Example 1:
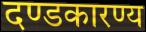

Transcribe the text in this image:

दण्डकारण्य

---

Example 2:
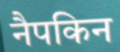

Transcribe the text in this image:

नैपकिन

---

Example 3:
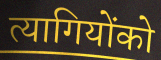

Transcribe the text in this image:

त्यागियोंको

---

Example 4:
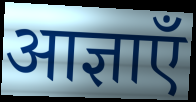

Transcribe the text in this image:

आज्ञाएँ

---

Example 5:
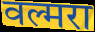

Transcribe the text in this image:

वल्मरा